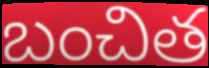
బంచిత